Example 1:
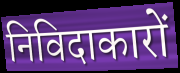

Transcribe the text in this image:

निविदाकारों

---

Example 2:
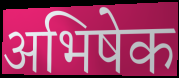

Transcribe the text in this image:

अभिषेक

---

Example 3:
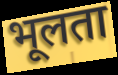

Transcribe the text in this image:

भूलता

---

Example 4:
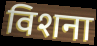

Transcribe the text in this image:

विशना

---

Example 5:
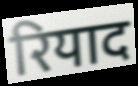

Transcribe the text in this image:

रियाद